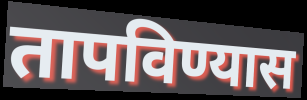
तापविण्यास